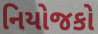
નિયોજકો